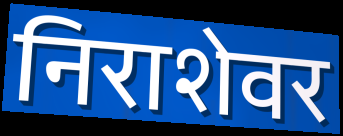
निराशेवर